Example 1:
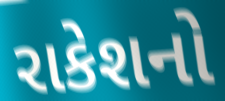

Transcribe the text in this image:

રાકેશનો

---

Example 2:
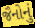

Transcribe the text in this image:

જૈનોનું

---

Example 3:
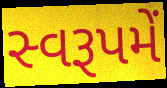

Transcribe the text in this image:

સ્વરૂપમેં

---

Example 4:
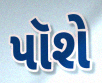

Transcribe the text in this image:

પૉશે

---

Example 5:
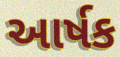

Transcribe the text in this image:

આર્ષક